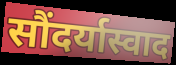
सौंदर्यास्वाद